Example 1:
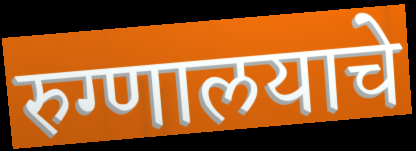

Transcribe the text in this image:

रुग्णालयाचे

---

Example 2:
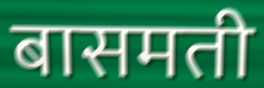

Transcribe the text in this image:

बासमती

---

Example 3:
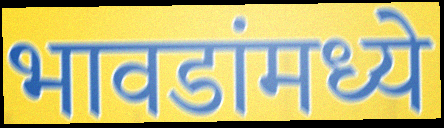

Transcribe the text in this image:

भावडांमध्ये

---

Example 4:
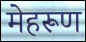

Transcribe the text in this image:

मेहरूण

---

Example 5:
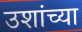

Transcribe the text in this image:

उशांच्या